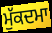
ਮੁੱਕਦਮਾ